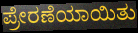
ಪ್ರೇರಣೆಯಾಯಿತು